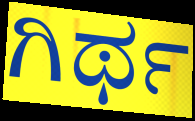
ಗಿರ್ಥ